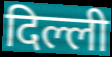
दिल्‍ली